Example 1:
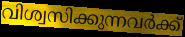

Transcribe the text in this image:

വിശ്വസിക്കുന്നവർക്ക്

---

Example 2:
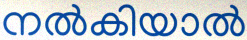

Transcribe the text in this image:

നൽകിയാൽ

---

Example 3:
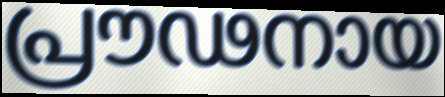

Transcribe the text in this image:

പ്രൗഢനായ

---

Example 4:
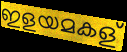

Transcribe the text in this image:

ഇളയമകള്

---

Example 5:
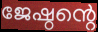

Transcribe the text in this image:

ജേഷ്ഠന്റെ